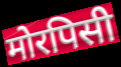
मोरपिसी